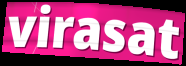
virasat